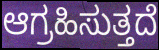
ಆಗ್ರಹಿಸುತ್ತದೆ